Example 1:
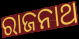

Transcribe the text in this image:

ରାଜନାଥ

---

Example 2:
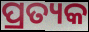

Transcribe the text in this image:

ପ୍ରତ୍ୟକ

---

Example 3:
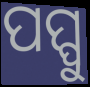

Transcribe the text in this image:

ପପ୍ପୁ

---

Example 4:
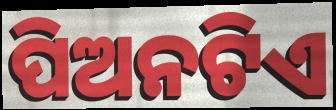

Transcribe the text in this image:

ପିଅନଟିଏ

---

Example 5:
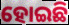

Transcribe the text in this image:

ହୋଇଛି